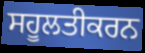
ਸਹੂਲਤੀਕਰਨ